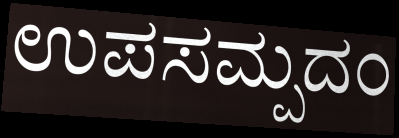
ಉಪಸಮ್ಪದಂ